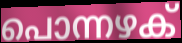
പൊന്നഴക്